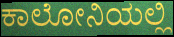
ಕಾಲೋನಿಯಲ್ಲಿ